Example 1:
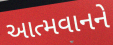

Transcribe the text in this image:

આત્મવાનને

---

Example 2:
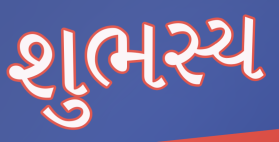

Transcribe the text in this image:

શુભસ્ય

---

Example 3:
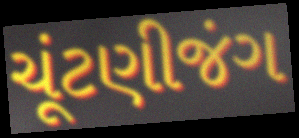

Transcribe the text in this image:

ચૂંટણીજંગ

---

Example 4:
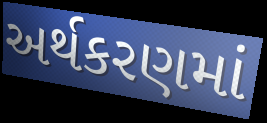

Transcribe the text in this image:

અર્થકરણમાં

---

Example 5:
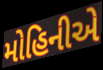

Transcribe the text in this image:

મોહિનીએ